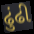
ઢુંઢી